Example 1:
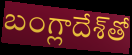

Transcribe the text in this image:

బంగ్లాదేశ్‌తో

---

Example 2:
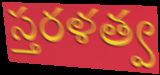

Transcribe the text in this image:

స్తరళత్వ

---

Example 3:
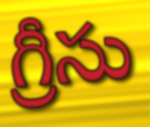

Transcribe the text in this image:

గ్రీసు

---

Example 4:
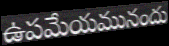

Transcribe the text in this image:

ఉపమేయమునందు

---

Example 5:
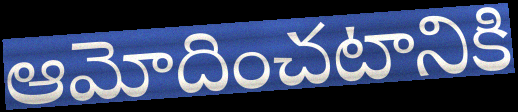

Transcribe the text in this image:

ఆమోదించటానికి